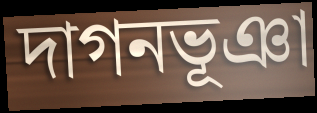
দাগনভূঞা